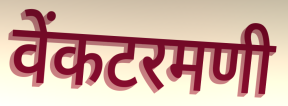
वेंकटरमणी